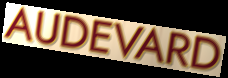
AUDEVARD